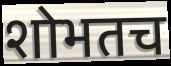
शोभतच